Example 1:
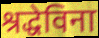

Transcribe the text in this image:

श्रद्धेविना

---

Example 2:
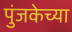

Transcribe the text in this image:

पुंजकेच्या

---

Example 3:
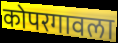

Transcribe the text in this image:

कोपरगावला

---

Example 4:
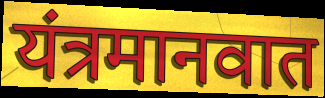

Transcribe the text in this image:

यंत्रमानवात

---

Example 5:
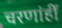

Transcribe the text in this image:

चरणांहीं